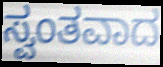
ಸ್ವಂತವಾದ